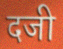
दजी